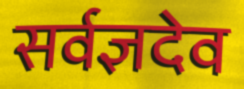
सर्वज्ञदेव